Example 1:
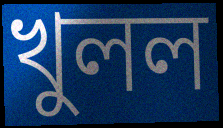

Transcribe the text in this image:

খুলল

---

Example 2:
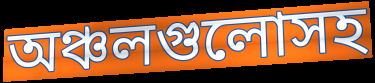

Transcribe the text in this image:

অঞ্চলগুলোসহ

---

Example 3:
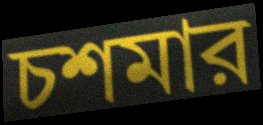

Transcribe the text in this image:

চশমার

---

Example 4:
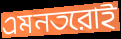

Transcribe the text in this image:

এমনতরোই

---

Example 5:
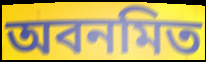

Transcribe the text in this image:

অবনমিত